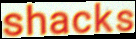
shacks